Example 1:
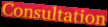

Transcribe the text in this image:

Consultation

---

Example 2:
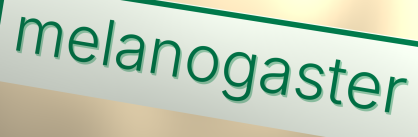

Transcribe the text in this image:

melanogaster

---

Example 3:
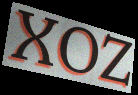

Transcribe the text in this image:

XOZ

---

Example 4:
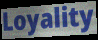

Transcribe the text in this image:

Loyality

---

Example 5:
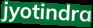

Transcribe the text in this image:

jyotindra